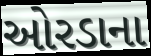
ઓરડાના